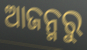
ଆଜନ୍ମରୁ